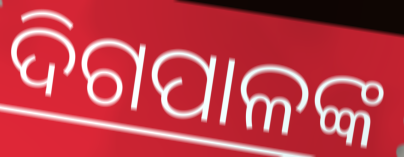
ଦିଗପାଳଙ୍କ